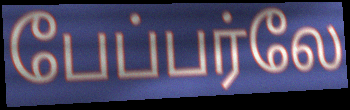
பேப்பர்லே